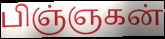
பிஞ்ஞகன்